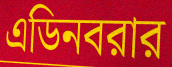
এডিনবরার